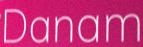
Danam